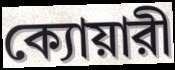
ক্যোয়ারী